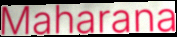
Maharana